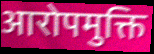
आरोपमुक्ति